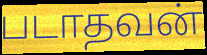
படாதவன்